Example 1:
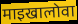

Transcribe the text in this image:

माइखालोवा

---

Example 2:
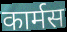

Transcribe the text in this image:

कार्मस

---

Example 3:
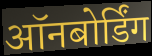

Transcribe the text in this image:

ऑनबोर्डिंग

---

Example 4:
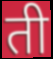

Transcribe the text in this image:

ती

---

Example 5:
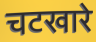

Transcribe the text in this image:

चटखारे